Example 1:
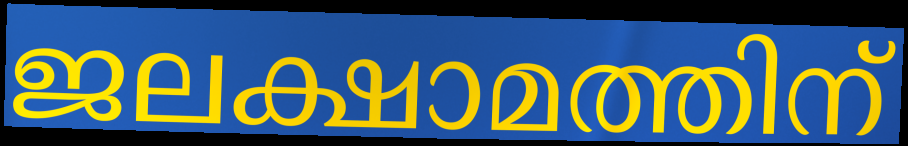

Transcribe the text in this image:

ജലക്ഷാമത്തിന്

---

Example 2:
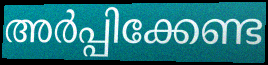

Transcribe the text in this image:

അർപ്പിക്കേണ്ട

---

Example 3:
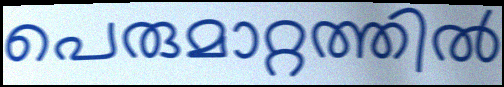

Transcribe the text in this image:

പെരുമാറ്റത്തിൽ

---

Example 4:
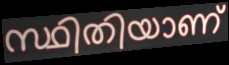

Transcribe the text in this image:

സ്ഥിതിയാണ്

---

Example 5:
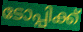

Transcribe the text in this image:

ടോപ്പിക്ക്